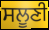
ਸਲੂਣੀ